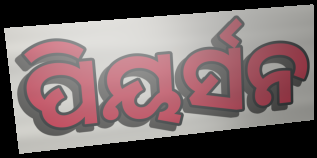
ପିୟର୍ସନ